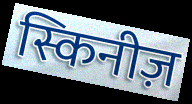
स्किनीज़